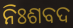
ନିଃଶବଦ